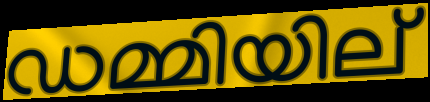
ഡമ്മിയില്